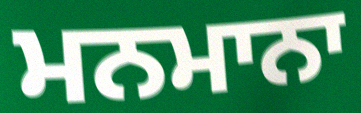
ਮਨਮਾਨਾ